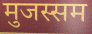
मुजस्सम